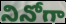
నినోగా